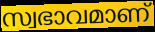
സ്വഭാവമാണ്